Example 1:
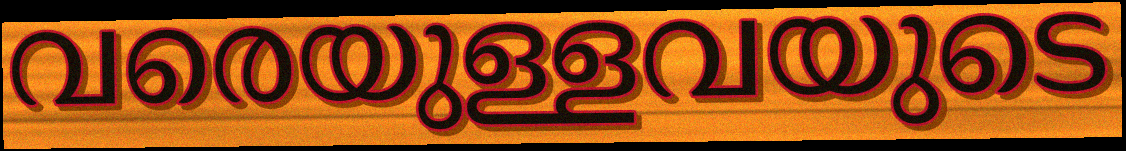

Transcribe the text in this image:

വരെയുള്ളവയുടെ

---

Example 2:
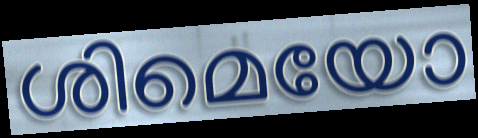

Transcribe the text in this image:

ശിമെയോ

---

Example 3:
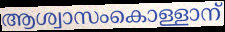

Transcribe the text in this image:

ആശ്വാസംകൊള്ളാന്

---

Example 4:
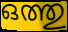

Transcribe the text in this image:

ഒത്തു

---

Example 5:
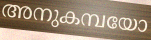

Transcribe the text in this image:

അനുകമ്പയോ